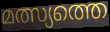
മത്സ്യത്തെ